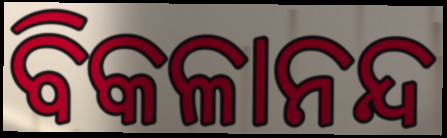
ବିକଳାନନ୍ଦ